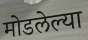
मोडलेल्या